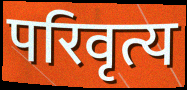
परिवृत्य